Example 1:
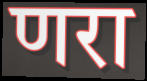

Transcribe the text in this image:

णरा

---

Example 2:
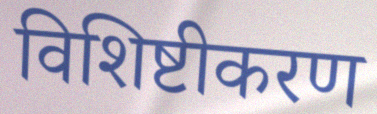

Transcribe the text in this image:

विशिष्टीकरण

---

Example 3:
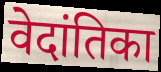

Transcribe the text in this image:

वेदांतिका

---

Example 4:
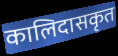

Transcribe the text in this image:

कालिदासकृत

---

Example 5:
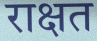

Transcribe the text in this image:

राक्षत